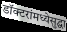
डॉक्टरांमध्येसुद्धा